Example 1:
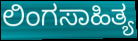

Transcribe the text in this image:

ಲಿಂಗಸಾಹಿತ್ಯ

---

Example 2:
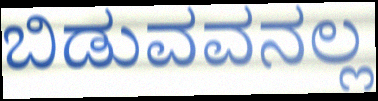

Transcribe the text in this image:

ಬಿಡುವವನಲ್ಲ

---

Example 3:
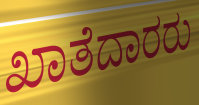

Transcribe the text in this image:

ಖಾತೆದಾರರು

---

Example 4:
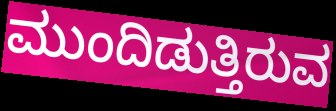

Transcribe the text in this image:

ಮುಂದಿಡುತ್ತಿರುವ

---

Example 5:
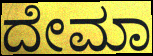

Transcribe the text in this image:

ದೇಮಾ